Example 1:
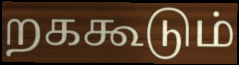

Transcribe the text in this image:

றககூடும்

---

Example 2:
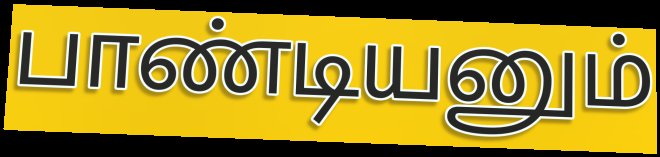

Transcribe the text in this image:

பாண்டியனும்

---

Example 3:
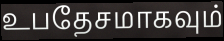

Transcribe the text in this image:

உபதேசமாகவும்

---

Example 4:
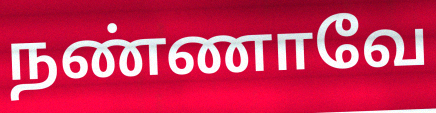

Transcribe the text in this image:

நண்ணாவே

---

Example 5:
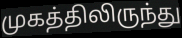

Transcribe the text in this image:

முகத்திலிருந்து